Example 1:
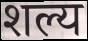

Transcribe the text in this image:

शल्‍य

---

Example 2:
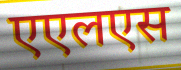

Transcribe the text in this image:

एएलएस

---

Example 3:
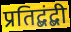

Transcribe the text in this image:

प्रतिद्बंद्बी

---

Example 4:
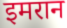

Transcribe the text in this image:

इमरान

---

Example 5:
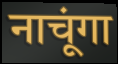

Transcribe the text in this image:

नाचूंगा